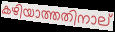
കഴിയാത്തതിനാല്